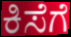
ಕಿಸೆಗೆ